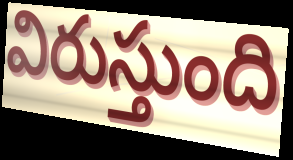
విరుస్తుంది